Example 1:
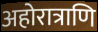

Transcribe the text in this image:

अहोरात्राणि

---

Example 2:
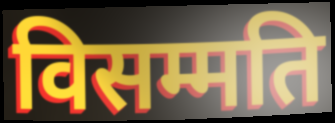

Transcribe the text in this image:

विसम्मति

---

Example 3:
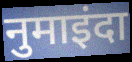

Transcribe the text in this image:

नुमाइंदा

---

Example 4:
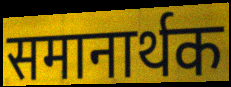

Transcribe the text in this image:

समानार्थक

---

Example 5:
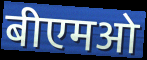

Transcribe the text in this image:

बीएमओ